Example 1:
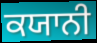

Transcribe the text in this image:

ਕਯਾਨੀ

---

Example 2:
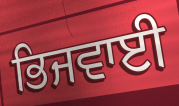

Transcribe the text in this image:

ਭਿਜਵਾਈ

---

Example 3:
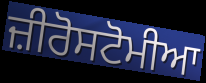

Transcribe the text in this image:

ਜ਼ੀਰੋਸਟੋਮੀਆ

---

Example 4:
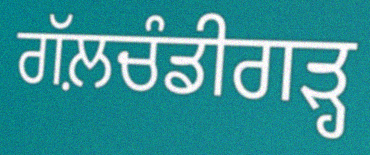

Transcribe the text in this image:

ਗੱਲ਼ਚੰਡੀਗੜ੍ਹ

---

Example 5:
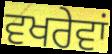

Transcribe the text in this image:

ਵਖਰੇਵਾਂ